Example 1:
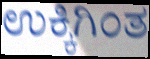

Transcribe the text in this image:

ಉಕ್ಕಿಗಿಂತ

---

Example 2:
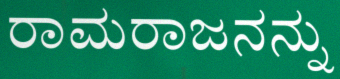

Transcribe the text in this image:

ರಾಮರಾಜನನ್ನು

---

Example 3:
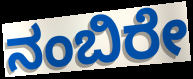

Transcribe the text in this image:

ನಂಬಿರೇ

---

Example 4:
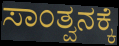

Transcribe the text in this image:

ಸಾಂತ್ವನಕ್ಕೆ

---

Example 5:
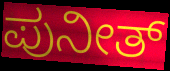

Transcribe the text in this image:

ಪುನೀತ್